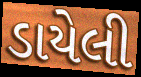
ડાયેલી